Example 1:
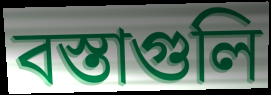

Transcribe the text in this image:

বস্তাগুলি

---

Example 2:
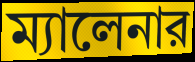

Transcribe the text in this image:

ম্যালেনার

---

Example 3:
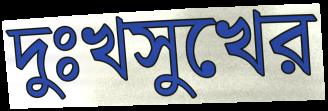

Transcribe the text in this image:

দুঃখসুখের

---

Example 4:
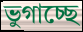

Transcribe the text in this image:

ভুগাচ্ছে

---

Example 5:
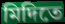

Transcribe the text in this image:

মিদিতে